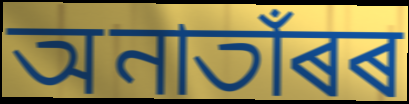
অনাতাঁৰৰ